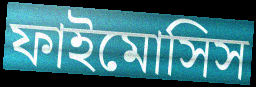
ফাইমোসিস